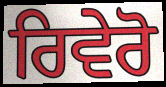
ਰਿਵੇਰੋ